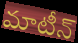
మాటీన్